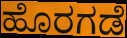
ಹೊರಗಡೆ